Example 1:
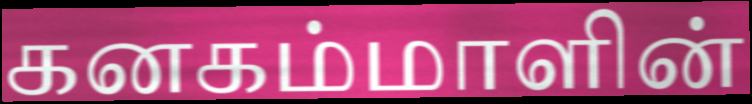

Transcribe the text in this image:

கனகம்மாளின்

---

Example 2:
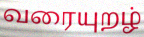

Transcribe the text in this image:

வரையுறழ்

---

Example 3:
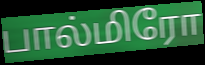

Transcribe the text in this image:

பால்மிரோ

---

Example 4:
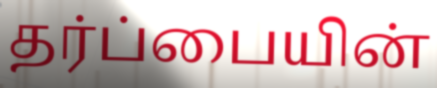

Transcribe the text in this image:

தர்ப்பையின்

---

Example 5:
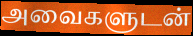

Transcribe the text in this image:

அவைகளுடன்